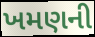
ખમણની